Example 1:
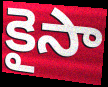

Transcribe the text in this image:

కైసా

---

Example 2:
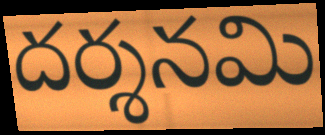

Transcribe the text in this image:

దర్శనమి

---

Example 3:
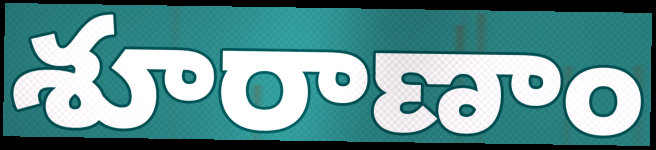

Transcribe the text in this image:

శూరాణాం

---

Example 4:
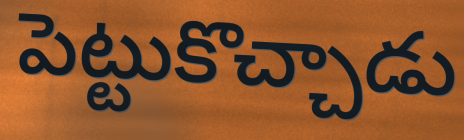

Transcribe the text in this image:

పెట్టుకొచ్చాడు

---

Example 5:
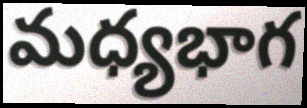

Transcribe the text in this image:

మధ్యభాగ